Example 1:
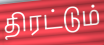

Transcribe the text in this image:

திரட்டும்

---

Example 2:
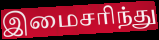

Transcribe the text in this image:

இமைசரிந்து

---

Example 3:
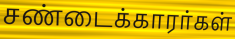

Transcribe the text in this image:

சண்டைக்காரர்கள்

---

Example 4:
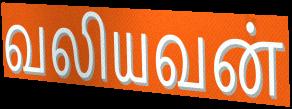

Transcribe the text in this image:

வலியவன்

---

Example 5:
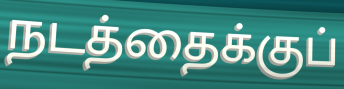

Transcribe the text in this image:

நடத்தைக்குப்